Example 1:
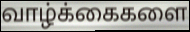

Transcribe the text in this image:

வாழ்க்கைகளை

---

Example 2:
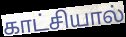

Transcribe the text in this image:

காட்சியால்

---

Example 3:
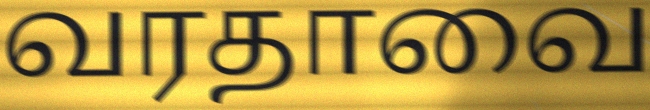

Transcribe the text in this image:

வரதாவை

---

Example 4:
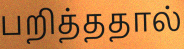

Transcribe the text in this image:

பறித்ததால்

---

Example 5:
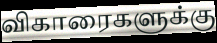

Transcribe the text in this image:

விகாரைகளுக்கு